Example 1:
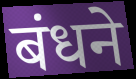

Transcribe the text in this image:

बंधने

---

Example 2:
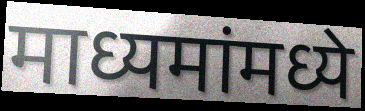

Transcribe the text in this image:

माध्यमांमध्ये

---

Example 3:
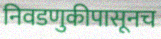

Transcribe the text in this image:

निवडणुकीपासूनच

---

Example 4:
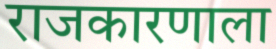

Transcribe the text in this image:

राजकारणाला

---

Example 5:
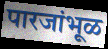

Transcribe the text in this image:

पारजांभूळ